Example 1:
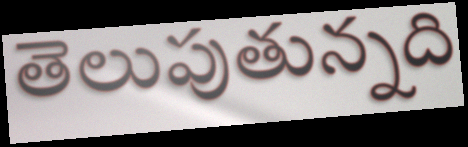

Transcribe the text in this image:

తెలుపుతున్నది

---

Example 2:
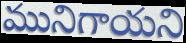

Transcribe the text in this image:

మునిగాయని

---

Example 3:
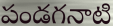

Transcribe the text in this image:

పండగనాటి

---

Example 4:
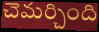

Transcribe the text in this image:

చెమర్చింది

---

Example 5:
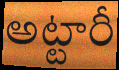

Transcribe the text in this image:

అట్టారీ